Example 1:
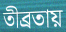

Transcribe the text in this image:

তীব্রতায়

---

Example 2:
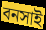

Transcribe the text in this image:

বনসাই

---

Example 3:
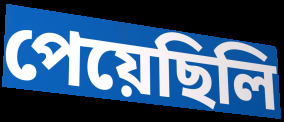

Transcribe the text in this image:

পেয়েছিলি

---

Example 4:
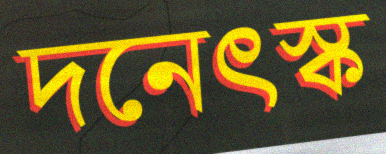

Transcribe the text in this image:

দনেৎস্ক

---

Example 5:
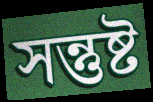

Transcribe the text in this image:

সন্তুষ্ট